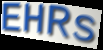
EHRs